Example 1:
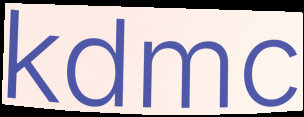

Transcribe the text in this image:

kdmc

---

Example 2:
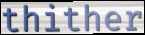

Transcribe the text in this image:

thither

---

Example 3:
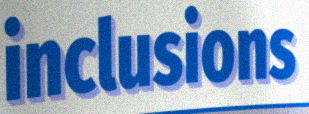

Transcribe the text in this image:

inclusions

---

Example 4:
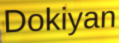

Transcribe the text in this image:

Dokiyan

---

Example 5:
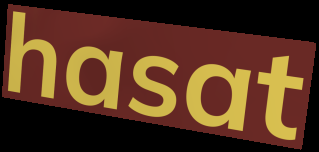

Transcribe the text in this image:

hasat